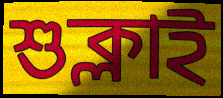
শুক্লাই